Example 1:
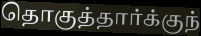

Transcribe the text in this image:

தொகுத்தார்க்குந்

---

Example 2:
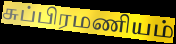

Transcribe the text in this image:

சுப்பிரமணியம்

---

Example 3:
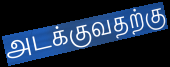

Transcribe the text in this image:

அடக்குவதற்கு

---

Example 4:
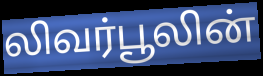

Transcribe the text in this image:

லிவர்பூலின்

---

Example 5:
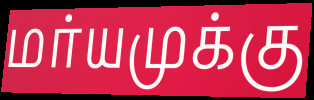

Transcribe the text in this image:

மர்யமுக்கு